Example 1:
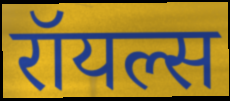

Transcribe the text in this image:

रॉयल्स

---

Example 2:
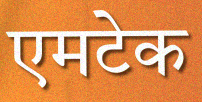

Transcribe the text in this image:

एमटेक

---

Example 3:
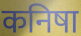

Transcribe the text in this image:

कनिषा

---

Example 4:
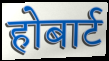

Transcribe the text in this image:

होबार्ट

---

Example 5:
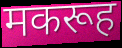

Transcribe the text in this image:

मकरूह